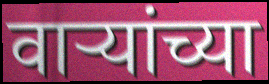
वाऱ्यांच्या